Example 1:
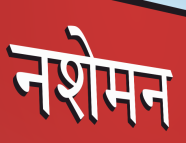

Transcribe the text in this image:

नशेमन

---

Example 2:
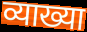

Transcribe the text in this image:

व्याख्या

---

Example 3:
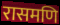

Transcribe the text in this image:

रासमणि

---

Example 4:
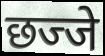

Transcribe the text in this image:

छज्जे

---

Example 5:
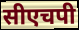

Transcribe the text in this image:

सीएचपी